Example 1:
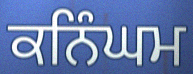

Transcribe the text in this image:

ਕਨਿੰਘਮ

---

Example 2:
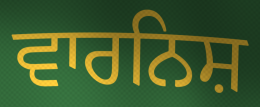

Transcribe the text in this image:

ਵਾਰਨਿਸ਼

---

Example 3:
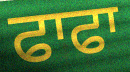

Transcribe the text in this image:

ਫਾਫਾ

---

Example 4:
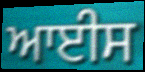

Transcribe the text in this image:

ਆਈਸ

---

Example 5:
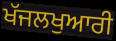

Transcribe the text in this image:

ਖੱਜਲਖੁਆਰੀ